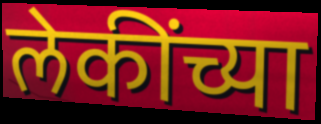
लेकींच्या